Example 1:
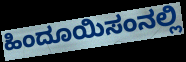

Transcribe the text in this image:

ಹಿಂದೂಯಿಸಂನಲ್ಲಿ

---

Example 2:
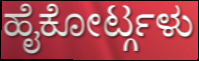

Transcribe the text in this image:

ಹೈಕೋರ್ಟ್ಗಳು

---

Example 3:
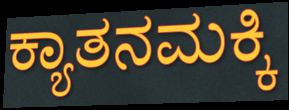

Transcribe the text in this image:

ಕ್ಯಾತನಮಕ್ಕಿ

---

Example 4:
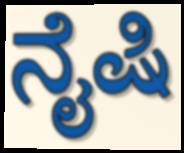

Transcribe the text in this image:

ನೈಷಿ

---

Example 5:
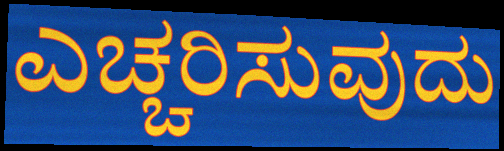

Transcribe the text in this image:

ಎಚ್ಚರಿಸುವುದು